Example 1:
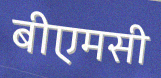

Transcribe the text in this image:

बीएमसी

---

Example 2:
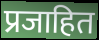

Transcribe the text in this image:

प्रजाहित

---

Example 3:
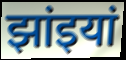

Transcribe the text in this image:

झांइयां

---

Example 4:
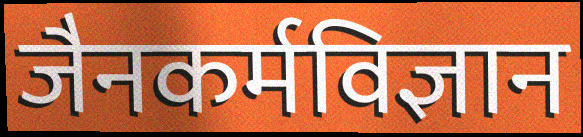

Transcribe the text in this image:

जैनकर्मविज्ञान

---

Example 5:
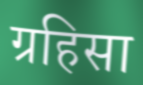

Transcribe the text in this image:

ग्रहिसा